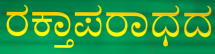
ರಕ್ತಾಪರಾಧದ